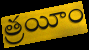
త్రయీం